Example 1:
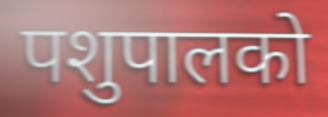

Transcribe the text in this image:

पशुपालको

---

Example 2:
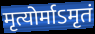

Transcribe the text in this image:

मृत्योर्माऽमृतं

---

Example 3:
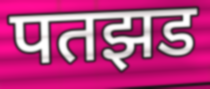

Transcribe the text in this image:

पतझड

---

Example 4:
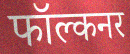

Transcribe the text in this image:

फॉल्कनर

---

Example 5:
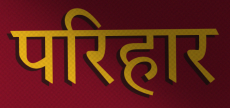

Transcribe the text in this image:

परिहार